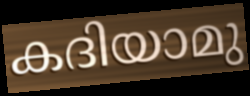
കദിയാമു